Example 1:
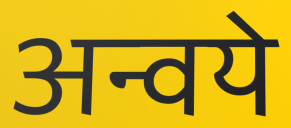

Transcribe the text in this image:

अन्‍वये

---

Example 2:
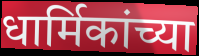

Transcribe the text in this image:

धार्मिकांच्या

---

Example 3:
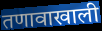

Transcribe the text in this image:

तणावाखाली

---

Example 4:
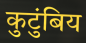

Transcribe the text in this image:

कुटुंबिय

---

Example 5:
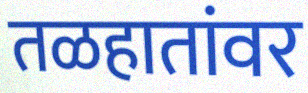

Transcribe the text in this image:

तळहातांवर